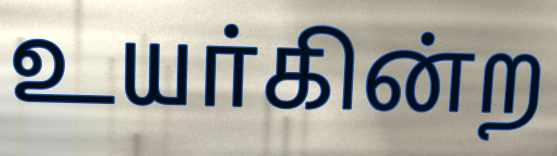
உயர்கின்ற